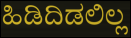
ಹಿಡಿದಿಡಲಿಲ್ಲ